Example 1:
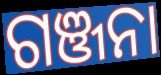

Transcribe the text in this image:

ଗଞ୍ଜନା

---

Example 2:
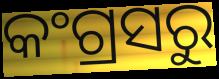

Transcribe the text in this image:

କଂଗ୍ରସରୁ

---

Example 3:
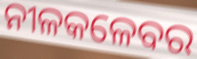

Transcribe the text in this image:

ନୀଳକଳେବର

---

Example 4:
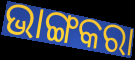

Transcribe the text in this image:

ଭାଙ୍ଗକରା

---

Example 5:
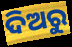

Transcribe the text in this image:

ଦିଅରୁ